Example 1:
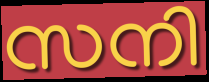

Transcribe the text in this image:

സനി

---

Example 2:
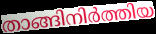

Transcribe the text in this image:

താങ്ങിനിർത്തിയ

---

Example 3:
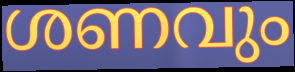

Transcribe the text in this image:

ശണവും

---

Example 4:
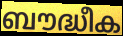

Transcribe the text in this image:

ബൗദ്ധീക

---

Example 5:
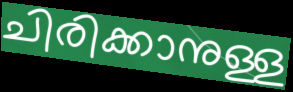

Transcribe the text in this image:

ചിരിക്കാനുള്ള